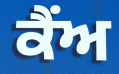
ਕੈਂਅ